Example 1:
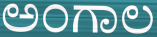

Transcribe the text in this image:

ಅಂಗಾಲ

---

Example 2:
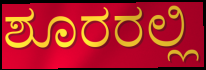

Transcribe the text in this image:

ಶೂರರಲ್ಲಿ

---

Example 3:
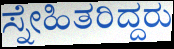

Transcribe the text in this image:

ಸ್ನೇಹಿತರಿದ್ದರು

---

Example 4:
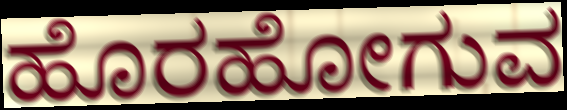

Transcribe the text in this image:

ಹೊರಹೋಗುವ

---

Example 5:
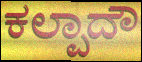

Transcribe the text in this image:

ಕಲ್ಪಾದೌ